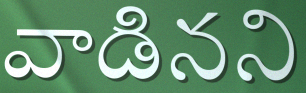
వాడినని